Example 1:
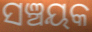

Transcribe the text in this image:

ସଞ୍ଚୟକ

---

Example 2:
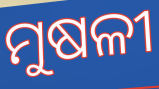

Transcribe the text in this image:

ମୁଷଳୀ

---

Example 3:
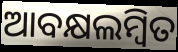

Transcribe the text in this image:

ଆବକ୍ଷଲମ୍ବିତ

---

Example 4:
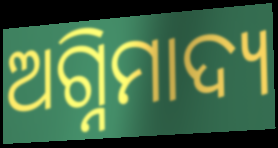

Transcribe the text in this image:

ଅଗ୍ନିମାଦ୍ୟ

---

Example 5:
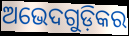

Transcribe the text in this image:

ଅଭେଦଗୁଡ଼ିକର